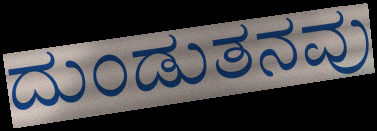
ದುಂಡುತನವು